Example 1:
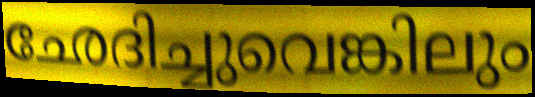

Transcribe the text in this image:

ഛേദിച്ചുവെങ്കിലും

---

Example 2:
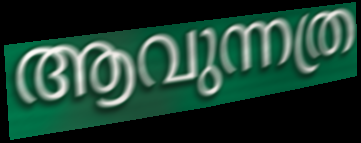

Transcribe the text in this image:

ആവുന്നത്ര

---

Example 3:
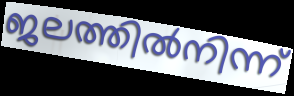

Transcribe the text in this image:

ജലത്തിൽനിന്ന്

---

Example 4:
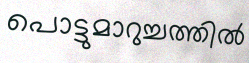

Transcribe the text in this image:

പൊട്ടുമാറുച്ചത്തിൽ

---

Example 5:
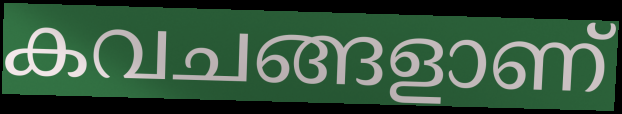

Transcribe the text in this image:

കവചങ്ങളാണ്